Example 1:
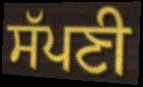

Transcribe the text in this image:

ਸੱਪਣੀ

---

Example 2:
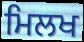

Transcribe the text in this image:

ਮਿਲਖ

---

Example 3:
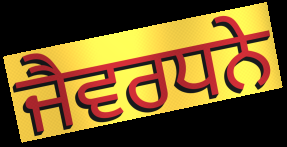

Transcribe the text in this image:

ਜੈਵਰਧਨੇ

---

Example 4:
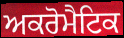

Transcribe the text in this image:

ਅਕਰੋਮੈਟਿਕ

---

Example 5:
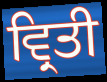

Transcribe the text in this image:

ਵ੍ਰਿਤੀ